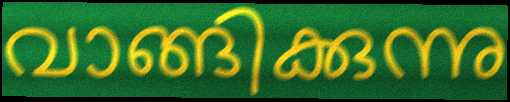
വാങ്ങിക്കുന്നു